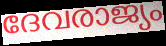
ദേവരാജ്യം